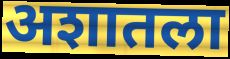
अशातला